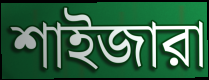
শাইজারা